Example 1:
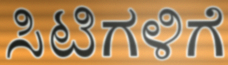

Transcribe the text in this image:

ಸಿಟಿಗಳಿಗೆ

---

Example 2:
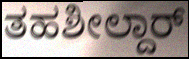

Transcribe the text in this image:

ತಹಶೀಲ್ದಾರ್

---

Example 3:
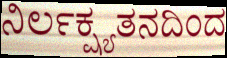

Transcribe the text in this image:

ನಿರ್ಲಕ್ಷ್ಯತನದಿಂದ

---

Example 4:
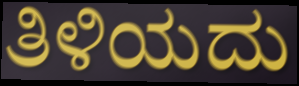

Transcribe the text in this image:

ತಿಳಿಯದು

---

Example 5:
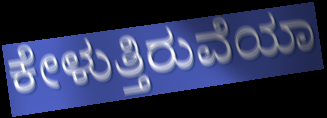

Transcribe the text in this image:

ಕೇಳುತ್ತಿರುವೆಯಾ